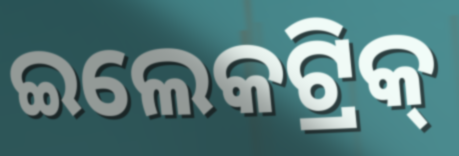
ଇଲେକଟ୍ରିକ୍